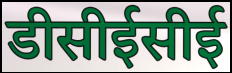
डीसीईसीई